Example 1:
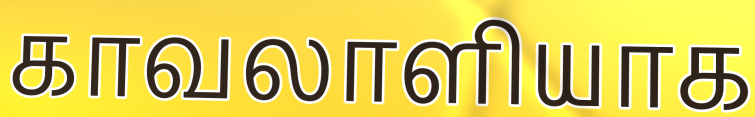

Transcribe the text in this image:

காவலாளியாக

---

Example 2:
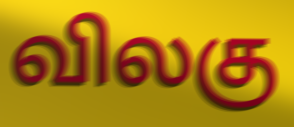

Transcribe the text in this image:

விலகு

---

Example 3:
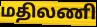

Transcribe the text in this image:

மதிலணி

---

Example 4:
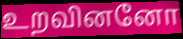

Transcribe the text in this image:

உறவினனோ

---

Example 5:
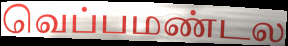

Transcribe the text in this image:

வெப்பமண்டல